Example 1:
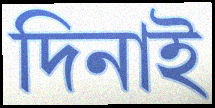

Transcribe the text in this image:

দিনাই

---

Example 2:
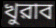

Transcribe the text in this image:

খুৱাব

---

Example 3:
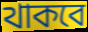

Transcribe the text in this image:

থাকবে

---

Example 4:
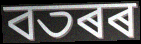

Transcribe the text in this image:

বতৰৰ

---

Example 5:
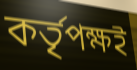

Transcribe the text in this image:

কৰ্তৃপক্ষই